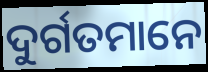
ଦୁର୍ଗତମାନେ